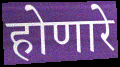
होणारे